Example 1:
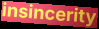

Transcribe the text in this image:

insincerity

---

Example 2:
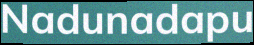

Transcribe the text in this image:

Nadunadapu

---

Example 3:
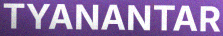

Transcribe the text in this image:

TYANANTAR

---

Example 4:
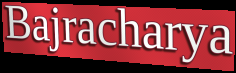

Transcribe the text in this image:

Bajracharya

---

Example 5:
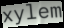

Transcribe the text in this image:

xylem